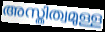
അസ്തിത്വമുള്ള